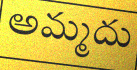
అమ్మదు